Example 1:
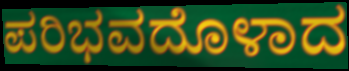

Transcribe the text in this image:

ಪರಿಭವದೊಳಾದ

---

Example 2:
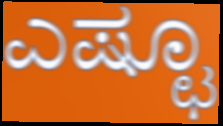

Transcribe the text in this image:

ಎಷ್ಟೂ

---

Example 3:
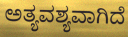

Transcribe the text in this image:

ಅತ್ಯವಶ್ಯವಾಗಿದೆ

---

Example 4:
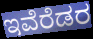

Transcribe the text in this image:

ಇವೆರೆಡರ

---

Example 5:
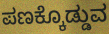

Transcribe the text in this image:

ಪಣಕ್ಕೊಡ್ಡುವ